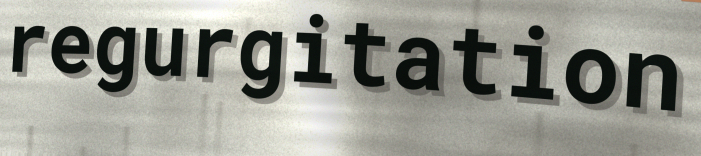
regurgitation